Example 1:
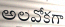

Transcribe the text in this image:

అలవోకగా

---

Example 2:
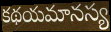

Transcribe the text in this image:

కథయమానస్య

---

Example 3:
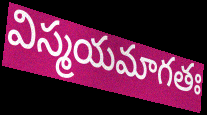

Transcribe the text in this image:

విస్మయమాగతః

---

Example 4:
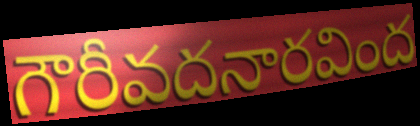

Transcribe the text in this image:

గౌరీవదనారవింద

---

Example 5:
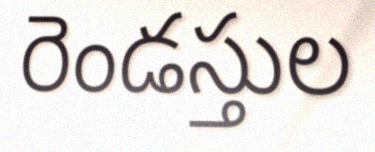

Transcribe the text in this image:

రెండస్తుల